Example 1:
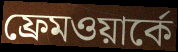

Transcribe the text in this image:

ফ্রেমওয়ার্কে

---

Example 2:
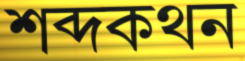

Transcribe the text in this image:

শব্দকথন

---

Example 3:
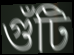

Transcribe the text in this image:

গুঁটি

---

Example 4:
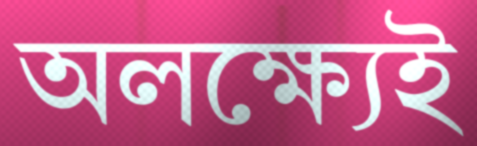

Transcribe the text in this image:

অলক্ষ্যেই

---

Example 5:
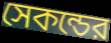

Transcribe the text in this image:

সেকন্ডের